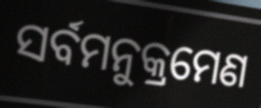
ସର୍ବମନୁକ୍ରମେଣ